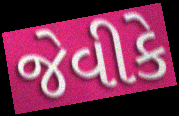
જેવીકે